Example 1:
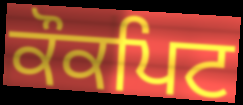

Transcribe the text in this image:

ਕੌਕਪਿਟ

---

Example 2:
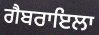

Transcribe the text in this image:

ਗੈਬਰਾਇਲਾ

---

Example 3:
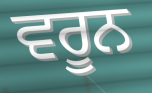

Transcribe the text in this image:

ਵਰੂਨ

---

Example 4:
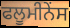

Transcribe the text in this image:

ਫਲੂਮੀਨੇਂਸ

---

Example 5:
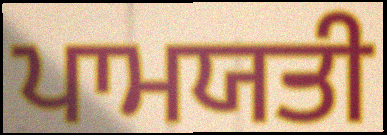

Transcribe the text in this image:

ਪਾਮਯਤੀ